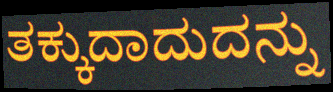
ತಕ್ಕುದಾದುದನ್ನು